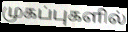
முகப்புகளில்